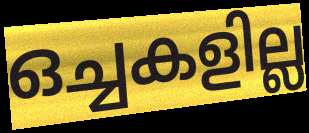
ഒച്ചകളില്ല